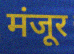
मंजूर